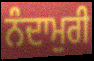
ਨੰਦਾਮੁਰੀ